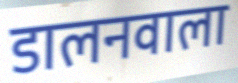
डालनवाला